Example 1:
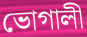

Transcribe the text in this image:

ভোগালী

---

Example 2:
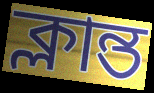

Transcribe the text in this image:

ক্লান্ত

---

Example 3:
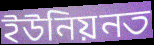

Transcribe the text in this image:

ইউনিয়নত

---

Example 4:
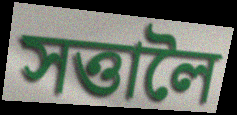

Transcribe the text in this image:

সত্তালৈ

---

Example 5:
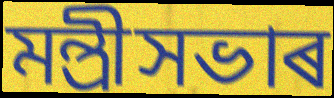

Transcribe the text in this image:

মন্ত্ৰীসভাৰ